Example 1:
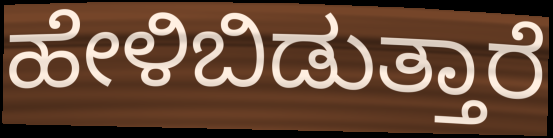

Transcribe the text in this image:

ಹೇಳಿಬಿಡುತ್ತಾರೆ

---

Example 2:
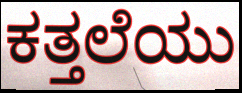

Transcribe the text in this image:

ಕತ್ತಲೆಯು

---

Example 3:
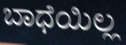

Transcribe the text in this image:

ಬಾಧೆಯಿಲ್ಲ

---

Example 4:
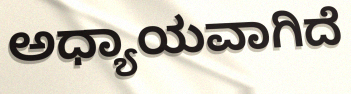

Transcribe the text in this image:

ಅಧ್ಯಾಯವಾಗಿದೆ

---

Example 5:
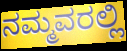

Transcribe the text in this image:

ನಮ್ಮವರಲ್ಲಿ